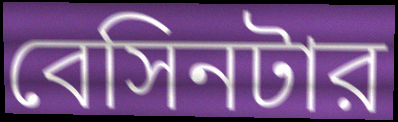
বেসিনটার